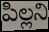
పిల్లని